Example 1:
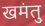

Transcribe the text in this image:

खमंतु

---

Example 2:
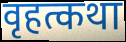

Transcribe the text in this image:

वृहत्कथा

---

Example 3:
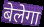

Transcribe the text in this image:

बेलेगा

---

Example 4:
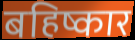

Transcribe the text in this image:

बहिष्कार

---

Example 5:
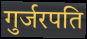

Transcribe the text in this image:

गुर्जरपति